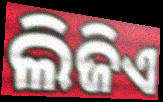
ଲିଜିଏ